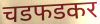
चडफडकर